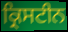
ਕ੍ਰਿਸਟੀਨ